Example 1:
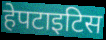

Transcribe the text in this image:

हेपटाइटिस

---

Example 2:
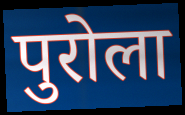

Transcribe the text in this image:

पुरोला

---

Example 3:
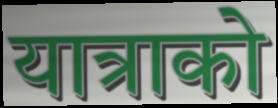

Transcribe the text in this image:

यात्राको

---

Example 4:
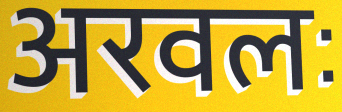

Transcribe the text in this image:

अरवलः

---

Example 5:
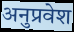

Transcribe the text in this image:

अनुप्रवेश